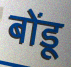
बोंडू